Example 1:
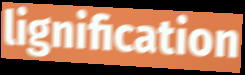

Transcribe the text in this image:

lignification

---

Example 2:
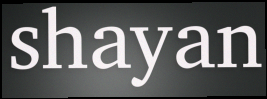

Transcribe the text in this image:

shayan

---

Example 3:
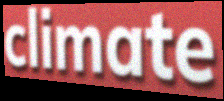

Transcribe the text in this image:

climate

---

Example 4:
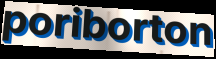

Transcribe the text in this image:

poriborton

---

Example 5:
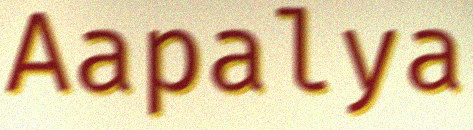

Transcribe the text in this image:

Aapalya